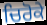
ਚਿਰੋਕੇ